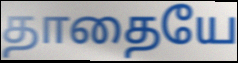
தாதையே